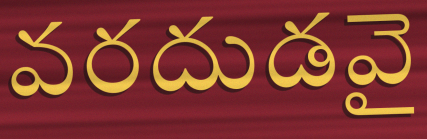
వరదుడవై